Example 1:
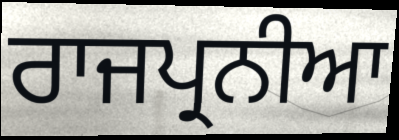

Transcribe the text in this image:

ਰਾਜਪ੍ਰਨੀਆ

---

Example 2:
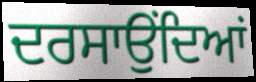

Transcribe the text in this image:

ਦਰਸਾਉਂਦਿਆਂ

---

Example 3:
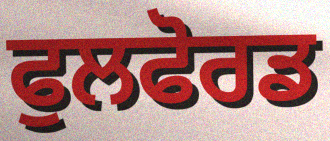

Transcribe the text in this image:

ਫੁਲਫੋਰਡ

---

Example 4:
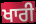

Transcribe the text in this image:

ਖਾਰੀ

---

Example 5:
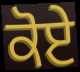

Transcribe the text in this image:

ਕੋਏ